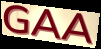
GAA